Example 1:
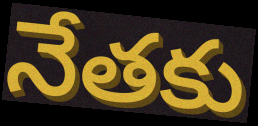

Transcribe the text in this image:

నేతకు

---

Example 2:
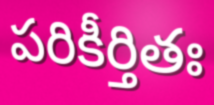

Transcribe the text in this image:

పరికీర్తితః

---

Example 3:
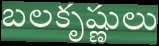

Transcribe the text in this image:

బలకృష్ణులు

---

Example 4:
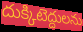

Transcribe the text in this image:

దుక్కిటెద్దులను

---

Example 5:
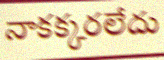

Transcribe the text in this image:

నాకక్కరలేదు